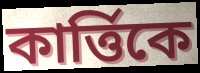
কার্ত্তিকে